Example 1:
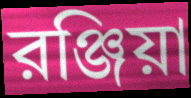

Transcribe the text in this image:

রঞ্জিয়া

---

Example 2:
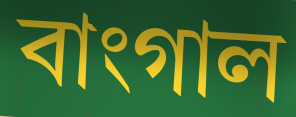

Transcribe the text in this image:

বাংগাল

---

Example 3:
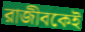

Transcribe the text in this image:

রাজীবকেই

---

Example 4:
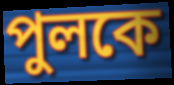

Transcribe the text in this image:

পুলকে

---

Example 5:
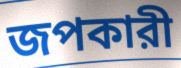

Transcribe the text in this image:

জপকারী